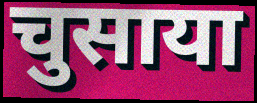
चुसाया